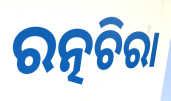
ରତ୍ନଚିରା